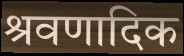
श्रवणादिक